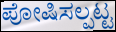
ಪೋಷಿಸಲ್ಪಟ್ಟ